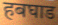
हबघाड